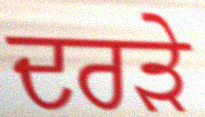
ਦਰੜੇ